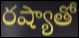
రష్యాతో